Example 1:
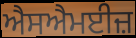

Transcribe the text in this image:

ਐਸਐਮਈਜ਼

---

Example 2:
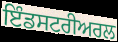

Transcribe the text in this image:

ਇੰਡਸਟਰੀਅਰਲ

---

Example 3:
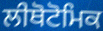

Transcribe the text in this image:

ਲੀਥੋਟੋਮਿਕ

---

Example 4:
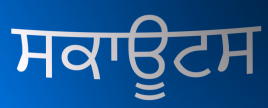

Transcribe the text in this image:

ਸਕਾਊਟਸ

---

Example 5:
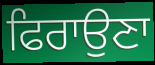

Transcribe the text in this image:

ਫਿਰਾਉਣਾ